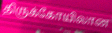
திருக்கோயிலான